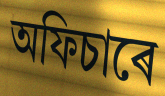
অফিচাৰে